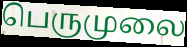
பெருமுலை